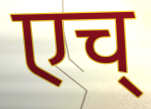
एच्